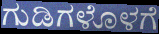
ಗುಡಿಗಳೊಳಗೆ